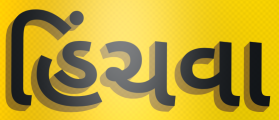
હિંચવા